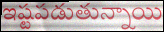
ఇష్టపడుతున్నాయి